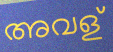
അവള്